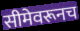
सीमेवरूनच